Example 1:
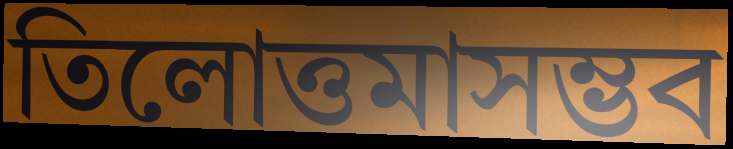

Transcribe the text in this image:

তিলোত্তমাসম্ভব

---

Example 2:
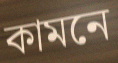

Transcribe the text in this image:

কামনে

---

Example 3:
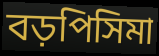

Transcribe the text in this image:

বড়পিসিমা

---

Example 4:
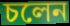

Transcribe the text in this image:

চলেন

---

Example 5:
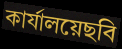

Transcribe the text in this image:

কার্যালয়েছবি